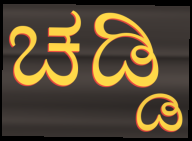
ಚಡ್ಡಿ